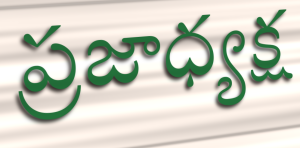
ప్రజాధ్యక్ష